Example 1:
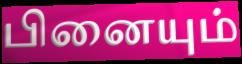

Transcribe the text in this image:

பினையும்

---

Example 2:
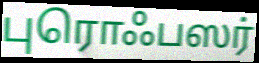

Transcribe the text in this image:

புரொஃபஸர்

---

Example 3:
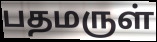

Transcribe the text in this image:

பதமருள்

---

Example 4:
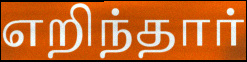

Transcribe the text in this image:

எறிந்தார்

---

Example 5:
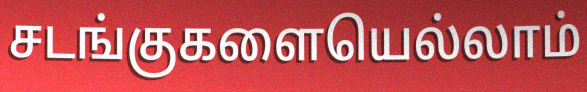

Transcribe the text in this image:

சடங்குகளையெல்லாம்